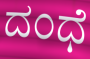
ದಂಧೆ